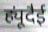
ह्यूंदैई